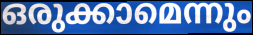
ഒരുക്കാമെന്നും